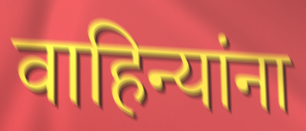
वाहिन्यांना